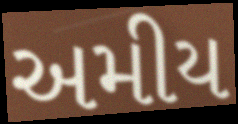
અમીય